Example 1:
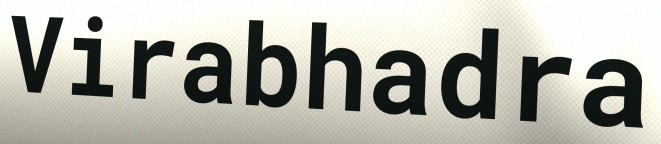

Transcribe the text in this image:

Virabhadra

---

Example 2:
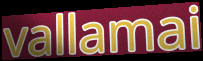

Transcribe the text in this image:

vallamai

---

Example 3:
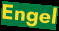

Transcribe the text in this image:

Engel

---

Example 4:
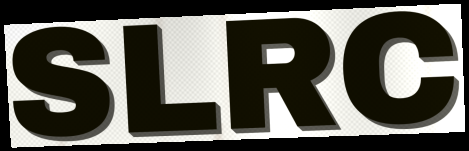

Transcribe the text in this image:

SLRC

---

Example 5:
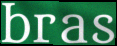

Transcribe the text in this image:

bras